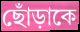
ছোঁড়াকে